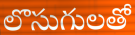
లొసుగులతో